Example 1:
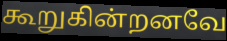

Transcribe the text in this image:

கூறுகின்றனவே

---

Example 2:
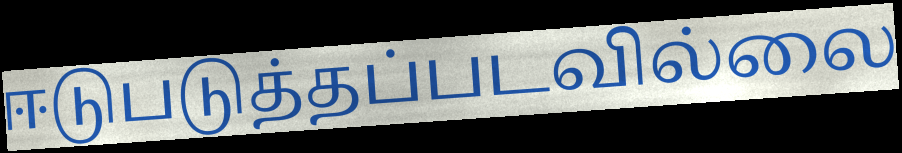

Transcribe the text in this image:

ஈடுபடுத்தப்படவில்லை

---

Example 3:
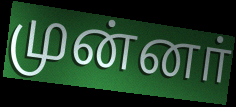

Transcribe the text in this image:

முன்னர்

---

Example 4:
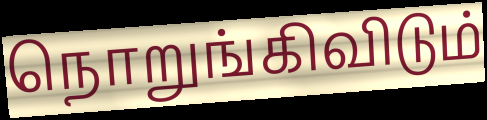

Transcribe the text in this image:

நொறுங்கிவிடும்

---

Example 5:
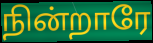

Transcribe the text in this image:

நின்றாரே